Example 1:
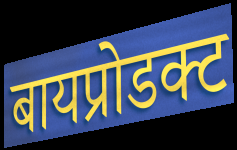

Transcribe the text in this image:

बायप्रोडक्ट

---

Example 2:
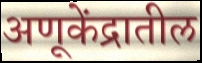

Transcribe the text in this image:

अणूकेंद्रातील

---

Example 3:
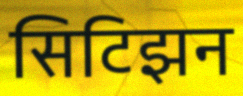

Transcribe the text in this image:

सिटिझन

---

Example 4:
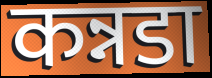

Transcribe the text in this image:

कन्नडा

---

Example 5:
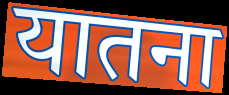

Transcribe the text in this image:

यातना